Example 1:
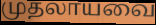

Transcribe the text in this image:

முதலாயவை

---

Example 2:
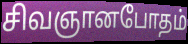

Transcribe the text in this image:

சிவஞானபோதம்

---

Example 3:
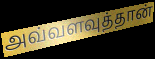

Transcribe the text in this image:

அவ்வளவுத்தான்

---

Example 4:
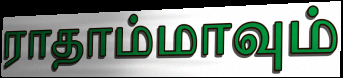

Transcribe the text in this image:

ராதாம்மாவும்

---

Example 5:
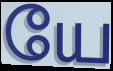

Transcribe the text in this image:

யே